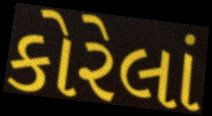
કોરેલાં